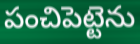
పంచిపెట్టెను